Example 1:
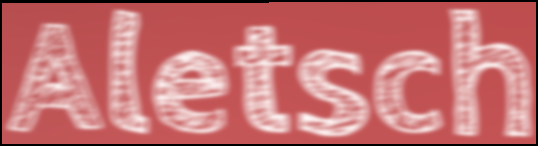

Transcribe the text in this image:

Aletsch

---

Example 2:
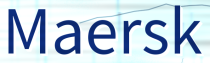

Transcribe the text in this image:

Maersk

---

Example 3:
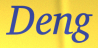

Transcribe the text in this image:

Deng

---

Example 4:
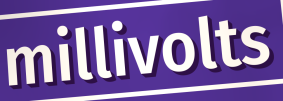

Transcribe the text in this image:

millivolts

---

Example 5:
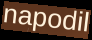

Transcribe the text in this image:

napodil